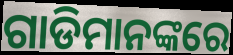
ଗାଡିମାନଙ୍କରେ